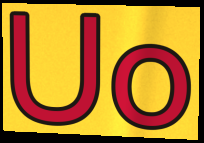
Uo